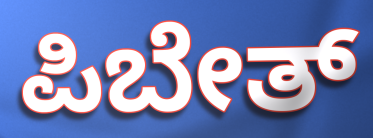
ಪಿಬೇತ್